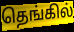
தெங்கில்